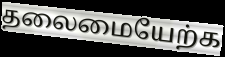
தலைமையேற்க